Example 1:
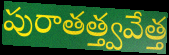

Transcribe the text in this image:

పురాతత్త్వవేత్త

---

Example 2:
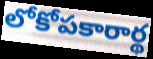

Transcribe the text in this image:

లోకోపకారార్థ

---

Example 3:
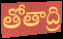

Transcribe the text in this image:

తోతాద్రి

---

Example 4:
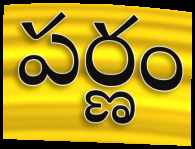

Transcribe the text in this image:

పర్ణం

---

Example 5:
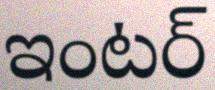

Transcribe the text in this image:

ఇంటర్